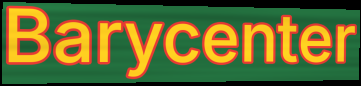
Barycenter